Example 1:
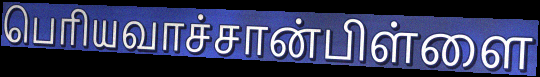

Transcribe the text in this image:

பெரியவாச்சான்பிள்ளை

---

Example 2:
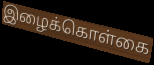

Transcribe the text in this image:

இழைக்கொள்கை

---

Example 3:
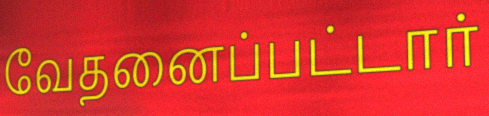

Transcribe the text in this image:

வேதனைப்பட்டார்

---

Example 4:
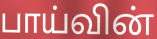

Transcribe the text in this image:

பாய்வின்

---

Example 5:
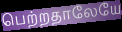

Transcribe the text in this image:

பெற்றதாலேயே